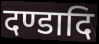
दण्डादि